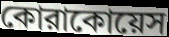
কোরাকোয়েস